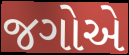
જગોએ